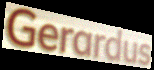
Gerardus